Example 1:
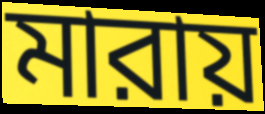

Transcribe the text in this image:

মারায়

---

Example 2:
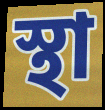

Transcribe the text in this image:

স্থা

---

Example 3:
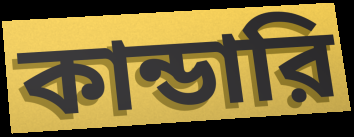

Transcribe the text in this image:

কান্ডারি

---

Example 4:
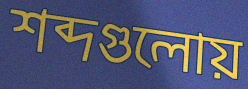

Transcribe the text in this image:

শব্দগুলোয়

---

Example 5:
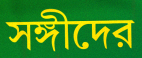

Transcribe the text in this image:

সঙ্গীদের